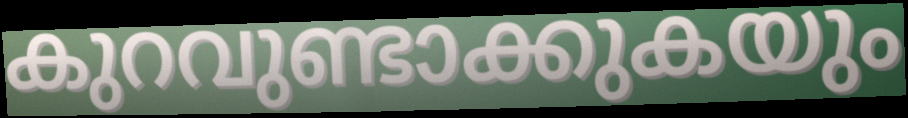
കുറവുണ്ടാക്കുകയും